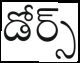
డోర్స్